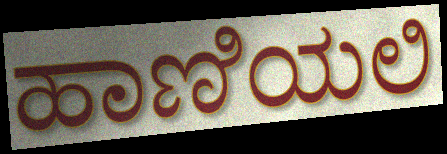
ಹಾಣಿಯಲಿ